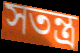
সতন্ত্র